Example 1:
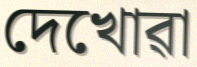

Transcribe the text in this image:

দেখোৱা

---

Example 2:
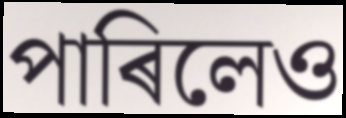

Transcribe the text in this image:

পাৰিলেও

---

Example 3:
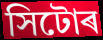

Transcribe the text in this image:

সিটোৰ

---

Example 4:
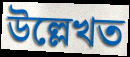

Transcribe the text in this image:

উল্লেখত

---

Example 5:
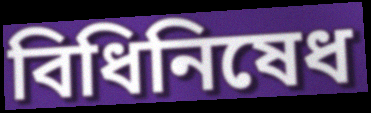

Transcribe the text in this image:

বিধিনিষেধ